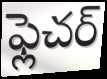
ఫ్లెచర్